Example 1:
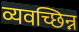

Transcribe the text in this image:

व्यवच्छिन्न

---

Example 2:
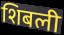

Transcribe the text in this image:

शिबली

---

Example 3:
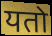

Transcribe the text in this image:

यतो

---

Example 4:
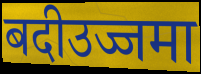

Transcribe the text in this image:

बदीउज्जमा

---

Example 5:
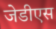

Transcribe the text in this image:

जेडीएस